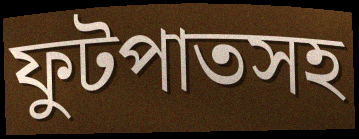
ফুটপাতসহ